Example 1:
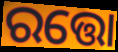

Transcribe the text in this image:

ରତ୍ତୋ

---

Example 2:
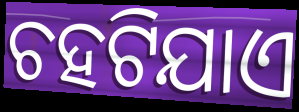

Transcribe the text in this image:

ଚହଟିଯାଏ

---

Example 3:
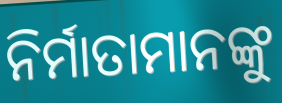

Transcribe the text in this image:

ନିର୍ମାତାମାନଙ୍କୁ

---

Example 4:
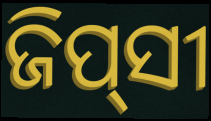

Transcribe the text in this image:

ଜିପ୍‍ସୀ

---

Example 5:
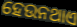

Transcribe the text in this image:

ହେଉନଥାଏ